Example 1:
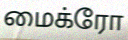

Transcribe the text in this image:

மைக்ரோ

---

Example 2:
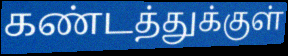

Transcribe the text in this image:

கண்டத்துக்குள்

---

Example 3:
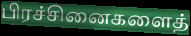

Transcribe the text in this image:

பிரச்சினைகளைத்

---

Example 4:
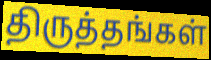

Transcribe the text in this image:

திருத்தங்கள்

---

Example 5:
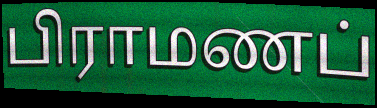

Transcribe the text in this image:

பிராமணப்